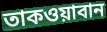
তাকওয়াবান